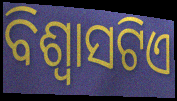
ବିଶ୍ଵାସଟିଏ